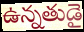
ఉన్నతుడై